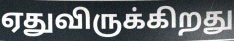
ஏதுவிருக்கிறது